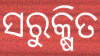
ସରୁକ୍ଷିତ